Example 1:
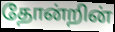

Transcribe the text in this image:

தோன்றின்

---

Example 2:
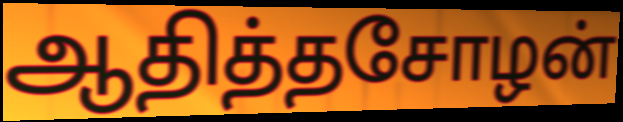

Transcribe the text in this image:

ஆதித்தசோழன்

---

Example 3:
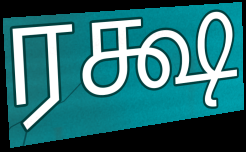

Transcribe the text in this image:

ரக்ஷ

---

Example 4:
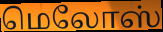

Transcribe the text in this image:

மெலோஸ்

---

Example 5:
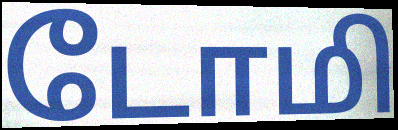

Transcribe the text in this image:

டோமி